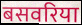
बसवरिया